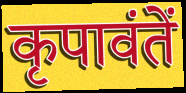
कृपावंतें